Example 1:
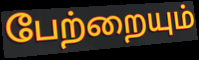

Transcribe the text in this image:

பேற்றையும்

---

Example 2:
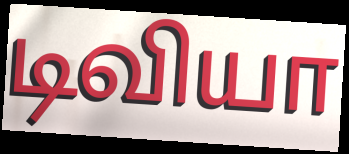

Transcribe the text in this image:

டிவியா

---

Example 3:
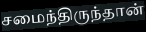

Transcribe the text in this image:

சமைந்திருந்தான்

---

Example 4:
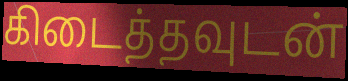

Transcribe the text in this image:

கிடைத்தவுடன்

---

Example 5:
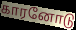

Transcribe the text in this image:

காரனோடு